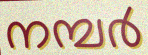
നമ്പർ